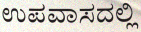
ಉಪವಾಸದಲ್ಲಿ